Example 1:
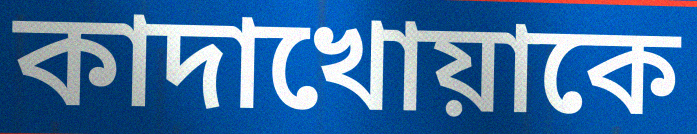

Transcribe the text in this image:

কাদাখোয়াকে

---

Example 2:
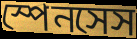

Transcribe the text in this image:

স্পেনসেস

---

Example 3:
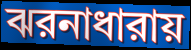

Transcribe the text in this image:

ঝরনাধারায়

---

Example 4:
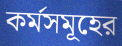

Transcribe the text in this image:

কর্মসমূহের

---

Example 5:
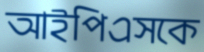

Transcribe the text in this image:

আইপিএসকে